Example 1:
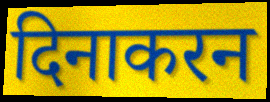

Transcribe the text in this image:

दिनाकरन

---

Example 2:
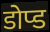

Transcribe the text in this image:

डोप्ड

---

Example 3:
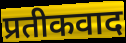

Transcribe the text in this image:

प्रतीकवाद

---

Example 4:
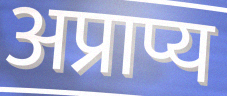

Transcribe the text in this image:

अप्राप्य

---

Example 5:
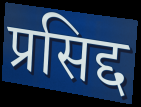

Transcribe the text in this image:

प्रसिद्द